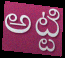
అట్టి